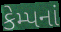
કેમ્પનાં